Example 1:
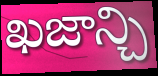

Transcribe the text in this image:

ఖజాన్చి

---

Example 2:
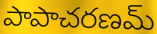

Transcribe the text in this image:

పాపాచరణమ్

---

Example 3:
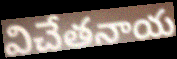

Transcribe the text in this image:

విచేతనాయ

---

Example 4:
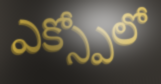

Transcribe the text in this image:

ఎక్స్పోలో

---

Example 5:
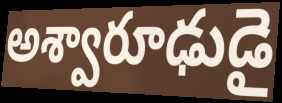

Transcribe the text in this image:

అశ్వారూఢుడై